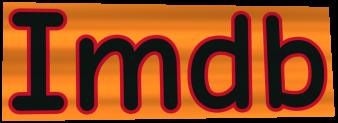
Imdb